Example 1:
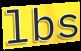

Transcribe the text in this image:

lbs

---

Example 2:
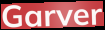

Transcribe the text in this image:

Garver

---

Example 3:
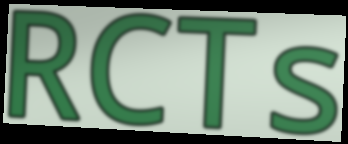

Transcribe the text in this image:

RCTs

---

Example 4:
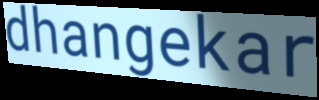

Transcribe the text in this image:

dhangekar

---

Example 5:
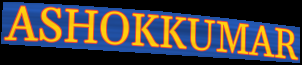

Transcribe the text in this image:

ASHOKKUMAR